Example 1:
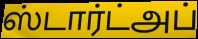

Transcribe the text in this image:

ஸ்டார்ட்அப்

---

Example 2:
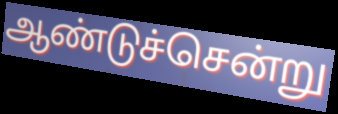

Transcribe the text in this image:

ஆண்டுச்சென்று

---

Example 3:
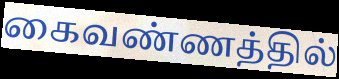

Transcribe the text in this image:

கைவண்ணத்தில்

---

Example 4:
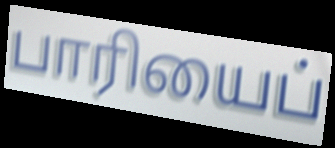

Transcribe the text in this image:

பாரியைப்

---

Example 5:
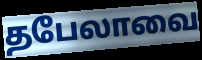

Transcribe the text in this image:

தபேலாவை